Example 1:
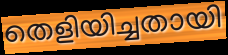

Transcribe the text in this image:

തെളിയിച്ചതായി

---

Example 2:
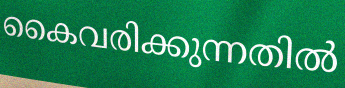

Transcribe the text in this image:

കൈവരിക്കുന്നതിൽ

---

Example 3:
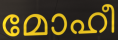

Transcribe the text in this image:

മോഹീ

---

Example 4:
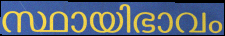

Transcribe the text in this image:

സ്ഥായിഭാവം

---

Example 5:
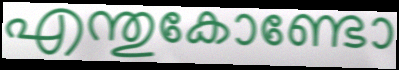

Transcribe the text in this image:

എന്തുകോണ്ടോ